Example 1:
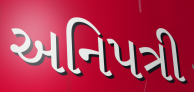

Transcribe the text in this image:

અનિપત્રી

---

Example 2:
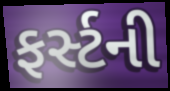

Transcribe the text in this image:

ફર્સ્ટની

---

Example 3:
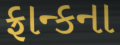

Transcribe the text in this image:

ફ્રાન્કના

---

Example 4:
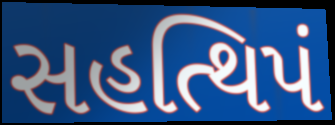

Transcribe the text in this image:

સહત્થિપં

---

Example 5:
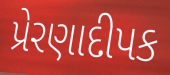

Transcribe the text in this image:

પ્રેરણાદીપક